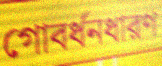
গোবর্ধনধারণ